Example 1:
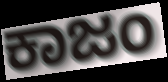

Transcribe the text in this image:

ಕಾಜಂ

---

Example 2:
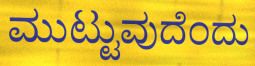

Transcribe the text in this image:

ಮುಟ್ಟುವುದೆಂದು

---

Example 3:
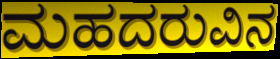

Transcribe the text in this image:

ಮಹದರುವಿನ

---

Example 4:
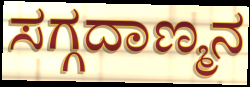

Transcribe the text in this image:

ಸಗ್ಗದಾಣ್ಮನ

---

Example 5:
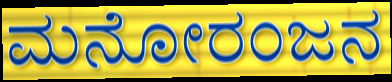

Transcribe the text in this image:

ಮನೋರಂಜನ